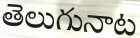
తెలుగునాట